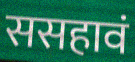
ससहावं